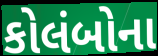
કોલંબોના